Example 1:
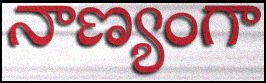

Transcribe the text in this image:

నాణ్యంగా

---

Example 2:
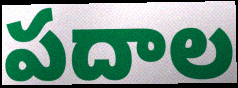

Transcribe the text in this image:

పదాల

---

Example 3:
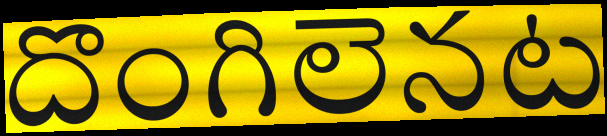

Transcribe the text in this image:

దొంగిలెనట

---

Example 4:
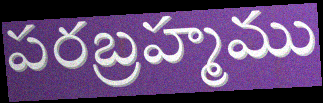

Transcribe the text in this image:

పరబ్రహ్మము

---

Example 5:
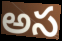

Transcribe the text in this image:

అస